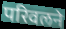
परिवलने